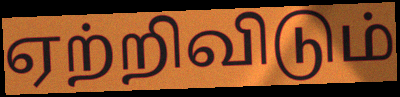
ஏற்றிவிடும்